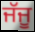
ਜੱਜੂ